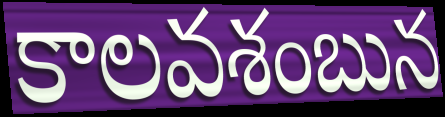
కాలవశంబున